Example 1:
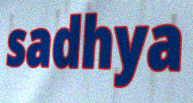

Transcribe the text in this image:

sadhya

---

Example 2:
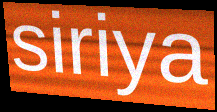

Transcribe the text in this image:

siriya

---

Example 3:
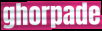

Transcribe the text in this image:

ghorpade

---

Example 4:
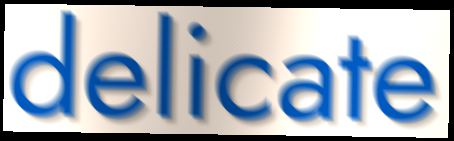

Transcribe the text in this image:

delicate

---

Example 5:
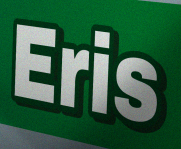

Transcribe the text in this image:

Eris